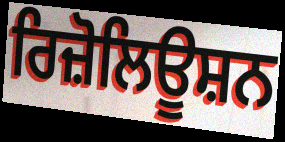
ਰਿਜ਼ੋਲਿਊਸ਼ਨ